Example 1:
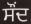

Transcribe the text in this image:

ਸੌਂਦ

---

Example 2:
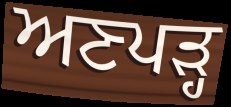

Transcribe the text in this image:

ਅਣਪੜ੍ਹ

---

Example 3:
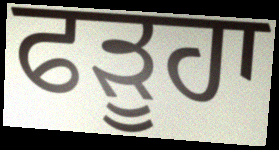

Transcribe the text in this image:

ਫੜੂਹਾ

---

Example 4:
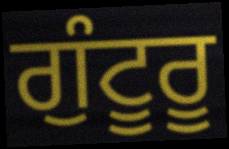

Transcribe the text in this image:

ਗੁੰਟੂਰੂ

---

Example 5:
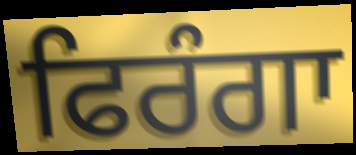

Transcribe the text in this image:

ਫਿਰੰਗਾ